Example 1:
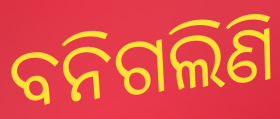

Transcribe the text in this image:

ବନିଗଲିଣି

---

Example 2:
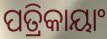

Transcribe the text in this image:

ପତ୍ରିକାୟାଂ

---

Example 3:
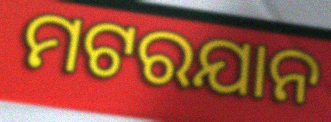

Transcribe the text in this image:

ମଟରଯାନ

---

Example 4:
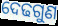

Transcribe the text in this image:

ଦେଢଗୁଣ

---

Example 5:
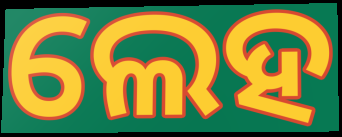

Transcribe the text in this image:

ଲେହ